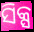
ସିକ୍ସ